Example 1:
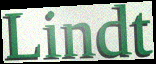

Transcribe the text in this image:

Lindt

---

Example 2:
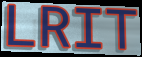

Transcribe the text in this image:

LRIT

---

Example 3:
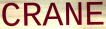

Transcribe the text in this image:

CRANE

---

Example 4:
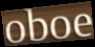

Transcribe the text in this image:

oboe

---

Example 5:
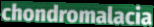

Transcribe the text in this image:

chondromalacia